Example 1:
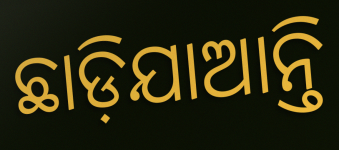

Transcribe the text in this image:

ଛାଡ଼ିଯାଆନ୍ତି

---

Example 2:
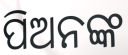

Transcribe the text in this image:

ପିଅନଙ୍କ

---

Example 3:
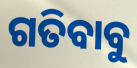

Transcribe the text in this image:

ଗତିବାବୁ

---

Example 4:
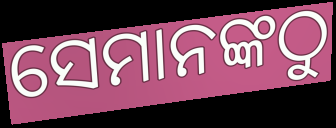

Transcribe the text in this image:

ସେମାନଙ୍କଠୁ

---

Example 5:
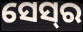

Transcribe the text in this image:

ସେସ୍‌ର